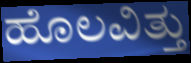
ಹೊಲವಿತ್ತು